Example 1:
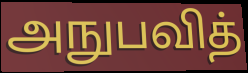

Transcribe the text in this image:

அநுபவித்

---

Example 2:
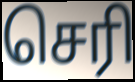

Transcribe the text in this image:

செரி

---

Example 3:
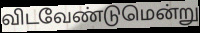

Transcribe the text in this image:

விடவேண்டுமென்று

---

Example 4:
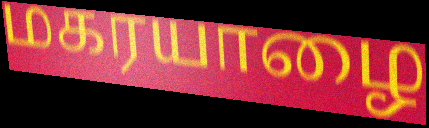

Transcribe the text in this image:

மகரயாழை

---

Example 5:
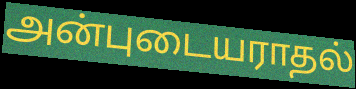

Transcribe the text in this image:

அன்புடையராதல்